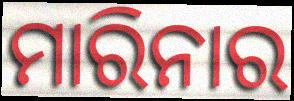
ମାରିନାର